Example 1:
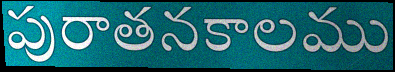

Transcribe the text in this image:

పురాతనకాలము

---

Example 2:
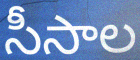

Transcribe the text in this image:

సీసాల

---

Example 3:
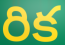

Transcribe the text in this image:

రిక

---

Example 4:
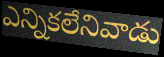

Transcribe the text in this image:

ఎన్నికలేనివాడు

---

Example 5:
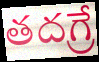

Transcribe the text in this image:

తదగ్రే